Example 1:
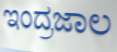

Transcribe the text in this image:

ಇಂದ್ರಜಾಲ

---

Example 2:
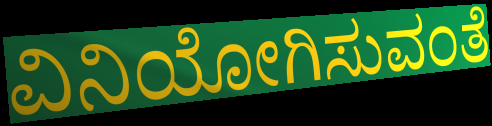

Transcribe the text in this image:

ವಿನಿಯೋಗಿಸುವಂತೆ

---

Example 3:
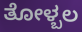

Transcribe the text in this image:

ತೋಳ್ಬಲ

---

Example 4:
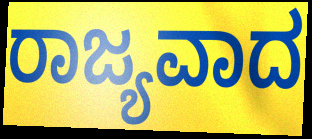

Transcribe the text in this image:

ರಾಜ್ಯವಾದ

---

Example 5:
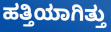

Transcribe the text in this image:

ಹತ್ತಿಯಾಗಿತ್ತು